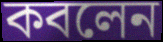
কবলেন